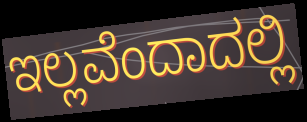
ಇಲ್ಲವೆಂದಾದಲ್ಲಿ